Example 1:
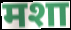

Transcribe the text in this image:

मशा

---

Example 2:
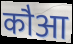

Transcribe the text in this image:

कौआ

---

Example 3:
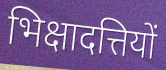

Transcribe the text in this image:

भिक्षादत्तियों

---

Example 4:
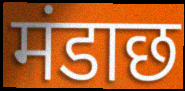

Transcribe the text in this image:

मंडाछ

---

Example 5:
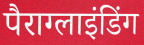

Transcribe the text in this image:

पैराग्लाइंडिंग